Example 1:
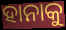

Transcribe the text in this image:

ହାନାକୁ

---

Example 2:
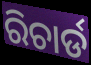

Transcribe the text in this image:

ରିଚାର୍ଡ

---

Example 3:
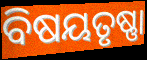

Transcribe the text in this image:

ବିଷୟତୃଷ୍ଣା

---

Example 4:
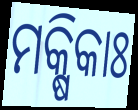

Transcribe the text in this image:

ମକ୍ଷିକାଃ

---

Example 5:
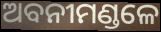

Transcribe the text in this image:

ଅବନୀମଣ୍ଡଳେ